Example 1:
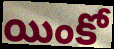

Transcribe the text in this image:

యింకో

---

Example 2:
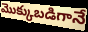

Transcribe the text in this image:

మొక్కుబడిగానే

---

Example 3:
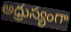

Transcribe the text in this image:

అధ్రుస్యంగా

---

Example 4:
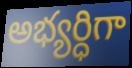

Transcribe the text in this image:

అభ్యర్ధిగా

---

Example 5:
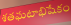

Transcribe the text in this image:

శతఘటాభిషేకం